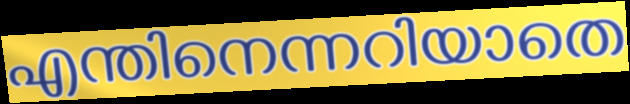
എന്തിനെന്നറിയാതെ